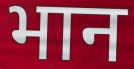
भान